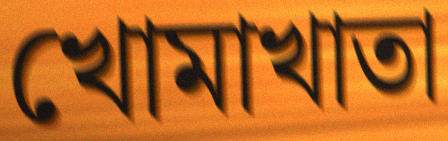
খোমাখাতা